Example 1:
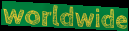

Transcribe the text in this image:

worldwide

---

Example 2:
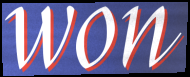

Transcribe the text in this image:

won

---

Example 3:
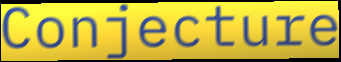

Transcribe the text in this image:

Conjecture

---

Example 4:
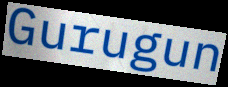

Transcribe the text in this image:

Gurugun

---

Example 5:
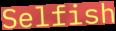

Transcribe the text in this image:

Selfish